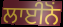
ਲਾਈਨੋਂ